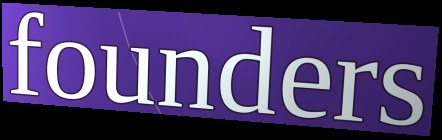
founders